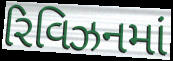
રિવિઝનમાં